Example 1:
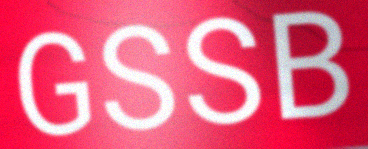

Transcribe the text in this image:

GSSB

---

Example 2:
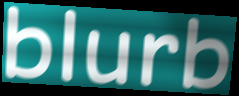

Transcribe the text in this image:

blurb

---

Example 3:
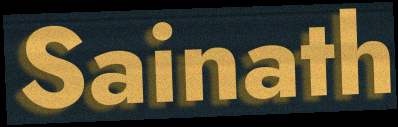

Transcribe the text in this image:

Sainath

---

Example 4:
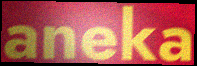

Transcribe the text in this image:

aneka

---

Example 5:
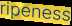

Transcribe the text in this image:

ripeness